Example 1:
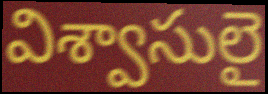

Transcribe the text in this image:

విశ్వాసులై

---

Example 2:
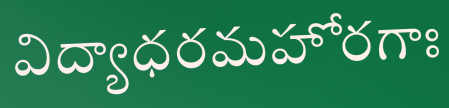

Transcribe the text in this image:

విద్యాధరమహోరగాః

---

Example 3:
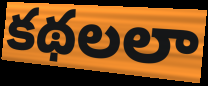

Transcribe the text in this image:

కథలలా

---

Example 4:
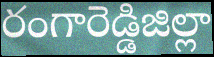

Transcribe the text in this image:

రంగారెడ్డిజిల్లా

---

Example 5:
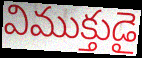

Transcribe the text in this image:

విముక్తుడై